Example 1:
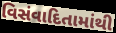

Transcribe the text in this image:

વિસંવાદિતામાંથી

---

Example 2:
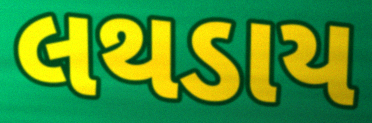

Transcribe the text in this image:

લથડાય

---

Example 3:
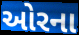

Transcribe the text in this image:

ઓરના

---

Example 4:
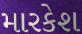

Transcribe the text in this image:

મારકેશ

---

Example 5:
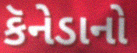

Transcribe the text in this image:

કૅનેડાનો